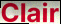
Clair